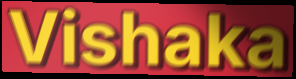
Vishaka